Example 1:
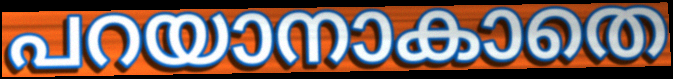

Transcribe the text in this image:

പറയാനാകാതെ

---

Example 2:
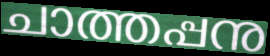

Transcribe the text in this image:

ചാത്തപ്പനു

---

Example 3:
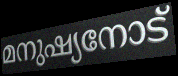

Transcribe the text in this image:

മനുഷ്യനോട്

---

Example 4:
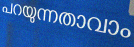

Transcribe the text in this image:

പറയുന്നതാവാം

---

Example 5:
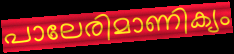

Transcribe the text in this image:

പാലേരിമാണിക്യം